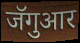
जॅगुआर